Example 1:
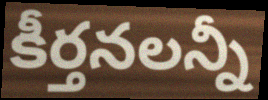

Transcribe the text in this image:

కీర్తనలన్నీ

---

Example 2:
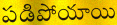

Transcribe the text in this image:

పడిపోయాయి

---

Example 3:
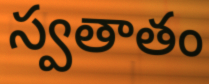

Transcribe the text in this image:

స్వతాతం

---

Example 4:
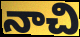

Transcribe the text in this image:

నాచి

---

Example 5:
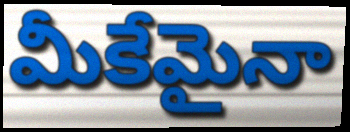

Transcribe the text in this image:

మీకేమైనా